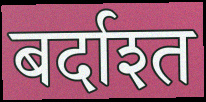
बर्दाश्त